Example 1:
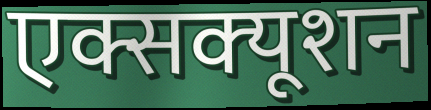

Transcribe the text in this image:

एक्सक्यूशन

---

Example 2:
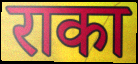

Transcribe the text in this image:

राका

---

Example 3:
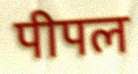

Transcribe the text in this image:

पीपल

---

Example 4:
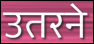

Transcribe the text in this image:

उतरने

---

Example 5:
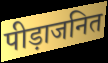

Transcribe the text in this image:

पीड़ाजनित